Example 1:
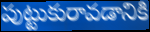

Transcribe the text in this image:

పుట్టుకురావడానికి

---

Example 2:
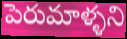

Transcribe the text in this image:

పెరుమాళ్ళని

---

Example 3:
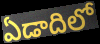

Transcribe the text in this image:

ఏడాదిలో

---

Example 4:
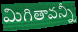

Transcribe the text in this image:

మిగితావన్నీ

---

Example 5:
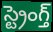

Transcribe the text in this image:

స్ట్రెంగ్త్